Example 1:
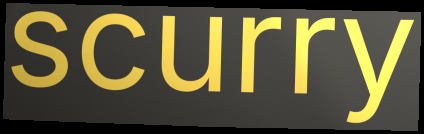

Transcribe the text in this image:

scurry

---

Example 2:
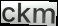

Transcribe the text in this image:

ckm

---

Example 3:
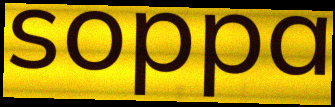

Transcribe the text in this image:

soppa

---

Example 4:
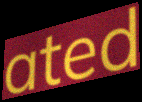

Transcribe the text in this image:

ated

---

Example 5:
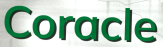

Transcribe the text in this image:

Coracle